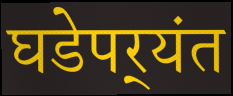
घडेपर्यंत